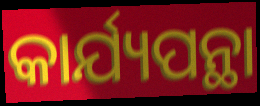
କାର୍ଯ୍ୟପନ୍ଥା